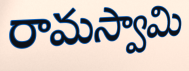
రామస్వామి